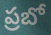
ప్రబో